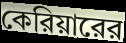
কেরিয়ারের